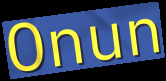
Onun